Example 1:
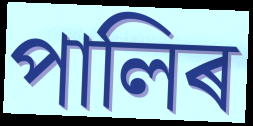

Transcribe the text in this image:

পালিৰ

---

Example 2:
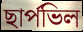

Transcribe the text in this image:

ছাৰ্পভিল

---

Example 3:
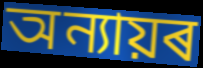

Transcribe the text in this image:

অন্যায়ৰ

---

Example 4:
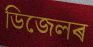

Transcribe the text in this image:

ডিজেলৰ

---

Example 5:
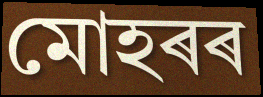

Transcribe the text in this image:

মোহৰৰ